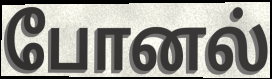
போனல்